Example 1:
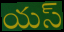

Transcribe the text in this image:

యస్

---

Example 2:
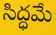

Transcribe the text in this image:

సిద్ధమే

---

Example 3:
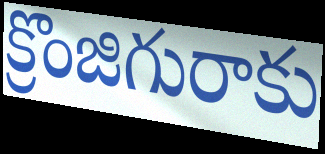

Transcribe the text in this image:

క్రొంజిగురాకు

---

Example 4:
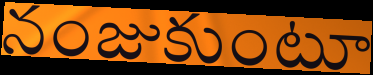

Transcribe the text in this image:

నంజుకుంటూ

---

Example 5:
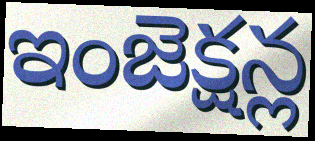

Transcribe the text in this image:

ఇంజెక్షన్ల